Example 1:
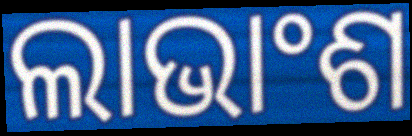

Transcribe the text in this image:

ଲାଭାଂଶ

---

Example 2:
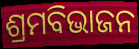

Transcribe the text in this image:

ଶ୍ରମବିଭାଜନ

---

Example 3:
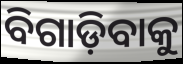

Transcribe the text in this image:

ବିଗାଡ଼ିବାକୁ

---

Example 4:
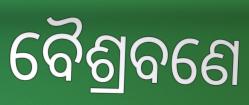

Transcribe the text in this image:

ବୈଶ୍ରବଣେ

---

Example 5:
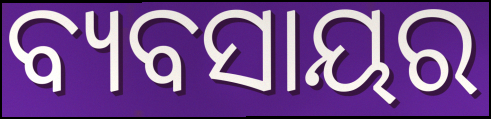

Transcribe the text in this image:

ବ୍ୟବସାୟର